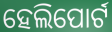
ହେଲିପୋର୍ଟ